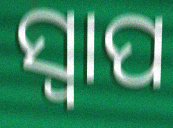
ସ୍ବାପ